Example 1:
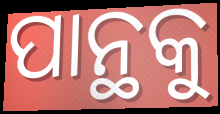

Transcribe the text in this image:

ପାନ୍ଥକୁ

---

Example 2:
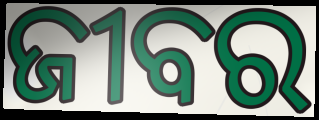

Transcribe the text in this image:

ଜୀବର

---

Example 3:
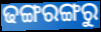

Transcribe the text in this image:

ଢଙ୍ଗରଙ୍ଗରୁ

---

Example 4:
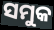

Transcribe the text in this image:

ସମୁକ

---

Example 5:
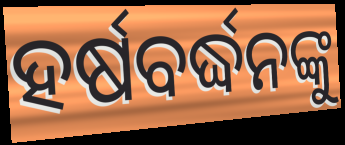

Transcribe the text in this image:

ହର୍ଷବର୍ଦ୍ଧନଙ୍କୁ